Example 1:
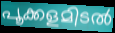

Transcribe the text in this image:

പൂക്കളമിടൽ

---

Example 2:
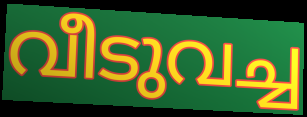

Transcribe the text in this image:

വീടുവച്ച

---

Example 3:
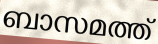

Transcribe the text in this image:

ബാസമത്ത്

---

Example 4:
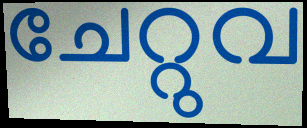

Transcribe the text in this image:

ചേറ്റുവ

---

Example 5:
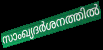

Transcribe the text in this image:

സാംഖ്യദർശനത്തിൽ